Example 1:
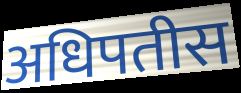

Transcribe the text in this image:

अधिपतीस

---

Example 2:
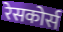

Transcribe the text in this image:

रेसकोर्स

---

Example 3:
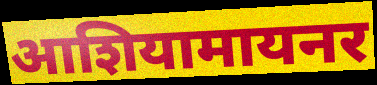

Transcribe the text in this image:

आशियामायनर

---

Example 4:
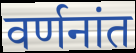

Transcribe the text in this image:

वर्णनांत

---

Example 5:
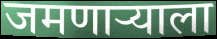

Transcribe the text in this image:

जमणाऱ्याला